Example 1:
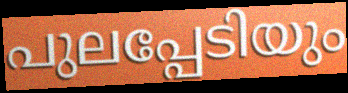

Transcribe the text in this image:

പുലപ്പേടിയും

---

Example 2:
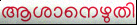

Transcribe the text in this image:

ആശാനെഴുതി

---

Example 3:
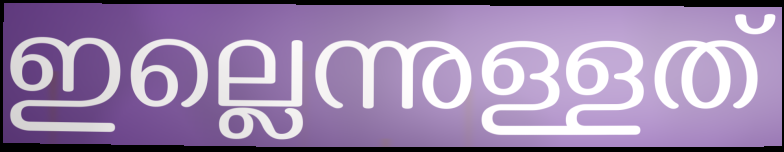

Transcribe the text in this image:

ഇല്ലെന്നുള്ളത്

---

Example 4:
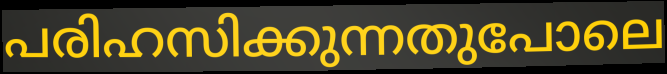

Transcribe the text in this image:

പരിഹസിക്കുന്നതുപോലെ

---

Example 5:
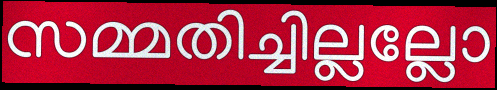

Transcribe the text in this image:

സമ്മതിച്ചില്ലല്ലോ